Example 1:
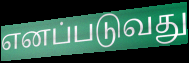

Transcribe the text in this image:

எனப்படுவது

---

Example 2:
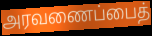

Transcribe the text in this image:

அரவணைப்பைத்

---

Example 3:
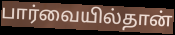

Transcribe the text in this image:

பார்வையில்தான்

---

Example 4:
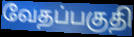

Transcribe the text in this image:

வேதப்பகுதி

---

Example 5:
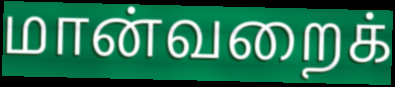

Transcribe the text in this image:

மான்வறைக்